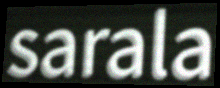
sarala